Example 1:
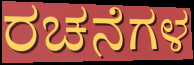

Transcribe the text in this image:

ರಚನೆಗಳ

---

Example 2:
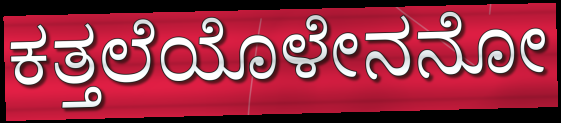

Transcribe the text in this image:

ಕತ್ತಲೆಯೊಳೇನನೋ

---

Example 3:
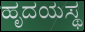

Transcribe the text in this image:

ಹೃದಯಸ್ಥ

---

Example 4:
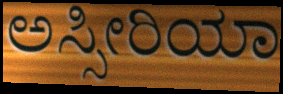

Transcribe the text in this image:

ಅಸ್ಸೀರಿಯಾ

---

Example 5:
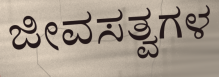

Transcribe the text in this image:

ಜೀವಸತ್ವಗಳ